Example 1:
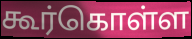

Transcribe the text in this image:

கூர்கொள்ள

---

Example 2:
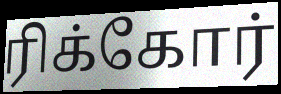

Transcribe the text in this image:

ரிக்கோர்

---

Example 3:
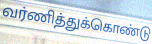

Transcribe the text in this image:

வர்ணித்துக்கொண்டு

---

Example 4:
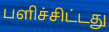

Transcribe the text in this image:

பளிச்சிட்டது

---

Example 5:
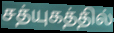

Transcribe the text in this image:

சத்யுகத்தில்